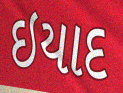
ઇયાદ